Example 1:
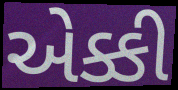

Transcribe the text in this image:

એક્કી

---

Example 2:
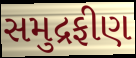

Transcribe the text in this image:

સમુદ્રફીણ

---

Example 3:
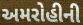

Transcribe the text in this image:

અમરોહીની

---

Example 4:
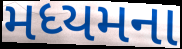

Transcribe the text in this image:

મધ્યમના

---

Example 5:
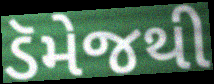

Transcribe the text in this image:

ડૅમેજથી